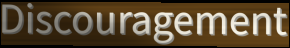
Discouragement